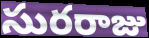
సురరాజు